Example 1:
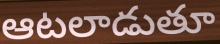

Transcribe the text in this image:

ఆటలాడుతూ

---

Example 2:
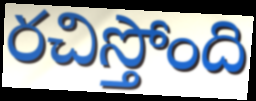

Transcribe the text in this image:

రచిస్తోంది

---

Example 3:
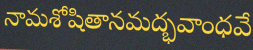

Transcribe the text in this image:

నామశోషితానమద్భవాంధవే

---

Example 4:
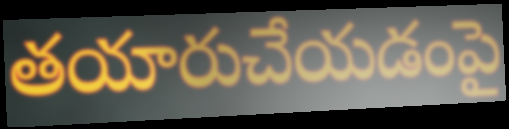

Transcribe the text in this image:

తయారుచేయడంపై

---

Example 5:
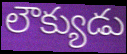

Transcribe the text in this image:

లౌక్యుడు